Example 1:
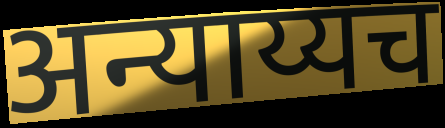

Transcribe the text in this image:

अन्याय्यच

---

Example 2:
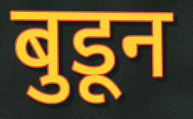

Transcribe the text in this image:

बुडून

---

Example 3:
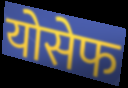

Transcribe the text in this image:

योसेफ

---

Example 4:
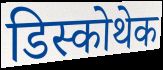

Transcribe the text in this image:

डिस्कोथेक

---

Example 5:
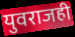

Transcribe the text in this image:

युवराजही